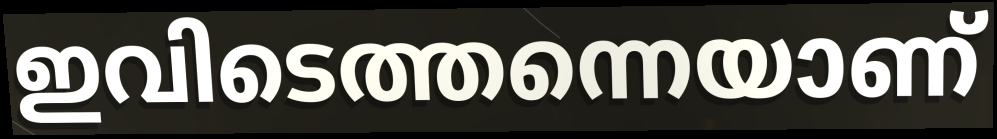
ഇവിടെത്തന്നെയാണ്